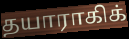
தயாராகிக்